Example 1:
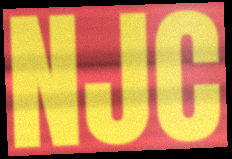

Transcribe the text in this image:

NJC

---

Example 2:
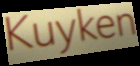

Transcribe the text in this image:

Kuyken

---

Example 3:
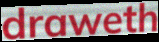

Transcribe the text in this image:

draweth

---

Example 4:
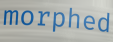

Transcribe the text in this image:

morphed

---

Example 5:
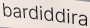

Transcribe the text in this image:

bardiddira